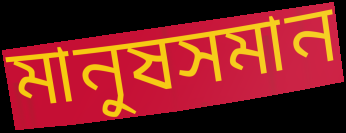
মানুষসমান